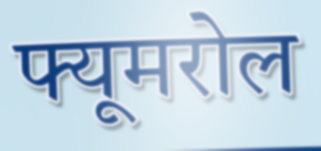
फ्यूमरोल